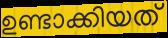
ഉണ്ടാക്കിയത്